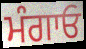
ਮੰਗਾਓ